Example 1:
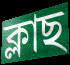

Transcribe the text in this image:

ক্লাছ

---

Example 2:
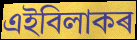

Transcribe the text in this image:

এইবিলাকৰ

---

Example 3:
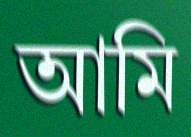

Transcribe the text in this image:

আমি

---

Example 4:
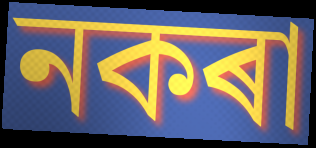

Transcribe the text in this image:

নকৰা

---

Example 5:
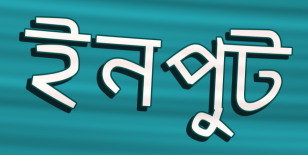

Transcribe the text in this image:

ইনপুট